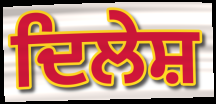
ਦਿਲੇਸ਼